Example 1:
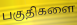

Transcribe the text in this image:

பகுதிகளை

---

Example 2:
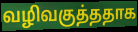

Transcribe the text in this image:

வழிவகுத்ததாக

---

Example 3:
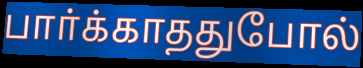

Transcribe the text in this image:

பார்க்காததுபோல்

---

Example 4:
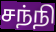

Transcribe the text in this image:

சந்நி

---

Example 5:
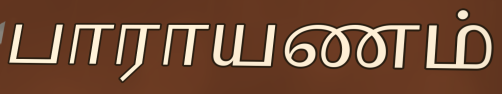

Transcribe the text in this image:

பாராயணம்